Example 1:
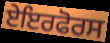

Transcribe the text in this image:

ਏਇਰਫੋਰਸ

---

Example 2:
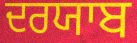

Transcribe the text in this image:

ਦਰਯਾਬ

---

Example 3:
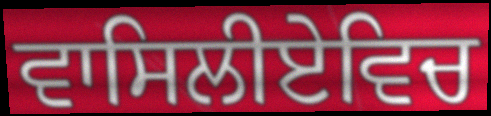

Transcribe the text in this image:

ਵਾਸਿਲੀਏਵਿਚ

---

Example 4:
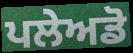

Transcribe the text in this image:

ਪਲੇਅਡੋ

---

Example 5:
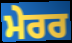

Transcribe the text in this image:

ਮੇਰਰ